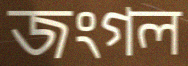
জংগল